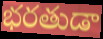
భరతుడా